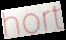
hort